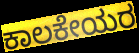
ಕಾಲಕೇಯರ